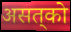
असत्‌को